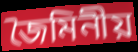
জৈমিনীয়